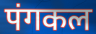
पंगकल